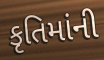
કૃતિમાંની